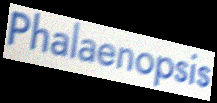
Phalaenopsis